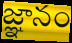
జ్ఞానం